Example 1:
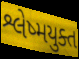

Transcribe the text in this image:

શ્લેષ્મયુક્ત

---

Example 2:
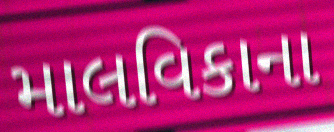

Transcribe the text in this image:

માલવિકાના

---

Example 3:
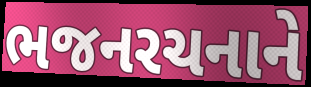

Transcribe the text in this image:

ભજનરચનાને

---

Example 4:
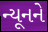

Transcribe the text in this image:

ન્યૂનને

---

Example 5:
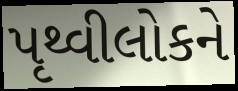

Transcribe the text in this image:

પૃથ્વીલોકને